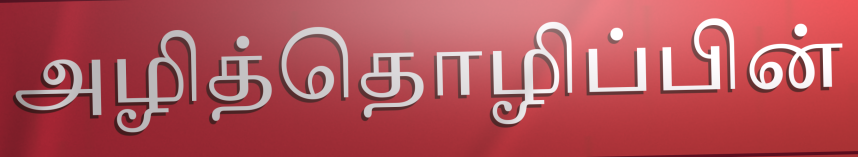
அழித்தொழிப்பின்